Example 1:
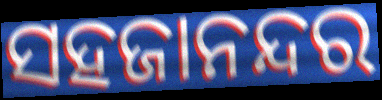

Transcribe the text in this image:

ସହଜାନନ୍ଦର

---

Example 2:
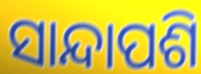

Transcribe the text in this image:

ସାନ୍ଦାପଶି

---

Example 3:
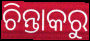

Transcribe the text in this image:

ଚିନ୍ତାକରୁ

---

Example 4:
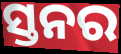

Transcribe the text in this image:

ସ୍ତନର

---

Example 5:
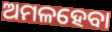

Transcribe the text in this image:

ଅମଳହେବା